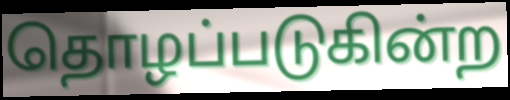
தொழப்படுகின்ற